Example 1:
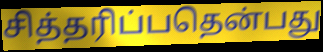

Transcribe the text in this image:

சித்தரிப்பதென்பது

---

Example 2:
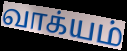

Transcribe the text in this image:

வாக்யம்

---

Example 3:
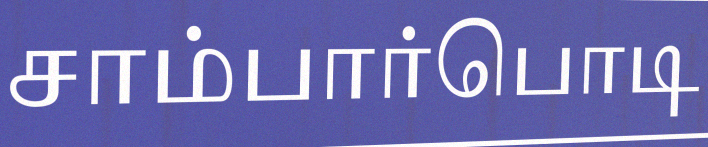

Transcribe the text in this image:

சாம்பார்பொடி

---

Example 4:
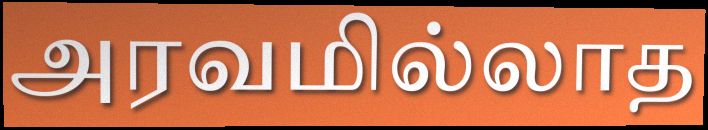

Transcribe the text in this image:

அரவமில்லாத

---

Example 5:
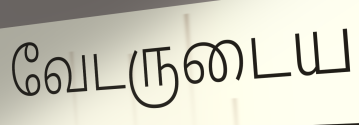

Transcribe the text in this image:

வேடருடைய